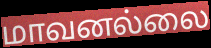
மாவனல்லை